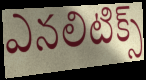
ఎనలిటిక్స్